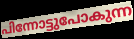
പിന്നോട്ടുപോകുന്ന